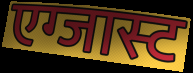
एग्जास्ट